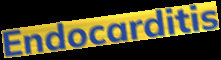
Endocarditis